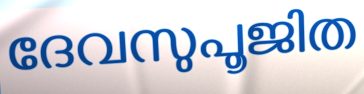
ദേവസുപൂജിത